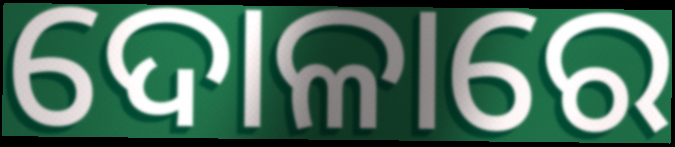
ଦୋଳାରେ